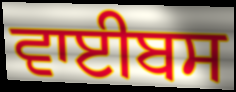
ਵਾਈਬਸ